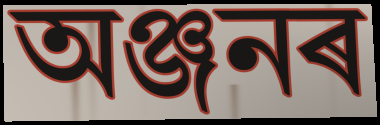
অঞ্জনৰ